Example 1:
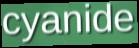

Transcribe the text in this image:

cyanide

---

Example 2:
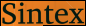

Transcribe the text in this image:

Sintex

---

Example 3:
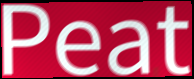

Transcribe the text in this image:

Peat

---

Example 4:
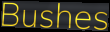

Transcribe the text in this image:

Bushes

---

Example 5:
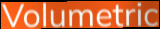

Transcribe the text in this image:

Volumetric